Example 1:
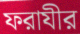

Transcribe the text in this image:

ফরাযীর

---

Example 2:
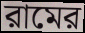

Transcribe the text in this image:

রামের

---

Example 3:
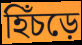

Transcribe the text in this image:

হিঁচড়ে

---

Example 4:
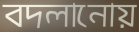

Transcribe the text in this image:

বদলানোয়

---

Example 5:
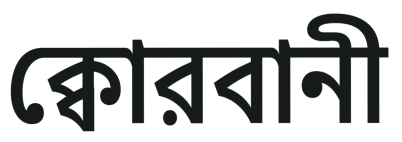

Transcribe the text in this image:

ক্বোরবানী